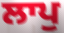
ਲਾਪੁ